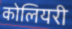
कोलियरी